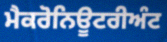
ਮੈਕਰੋਨਿਊਟਰੀਅੰਟ